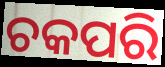
ଚକପରି